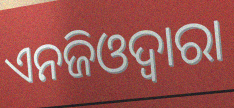
ଏନଜିଓଦ୍ୱାରା